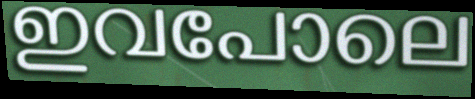
ഇവപോലെ